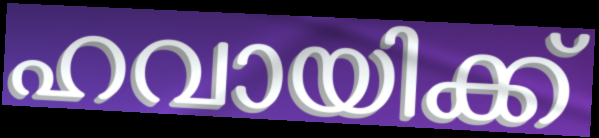
ഹവായിക്ക്